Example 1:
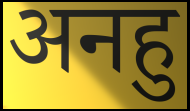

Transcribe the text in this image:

अनहु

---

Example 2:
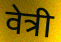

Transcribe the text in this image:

वेत्री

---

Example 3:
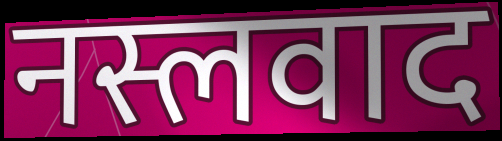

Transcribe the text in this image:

नस्लवाद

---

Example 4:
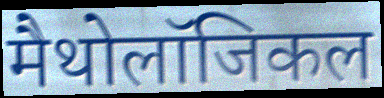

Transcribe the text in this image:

मैथोलॉजिकल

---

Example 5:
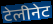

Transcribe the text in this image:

टेलीनेट